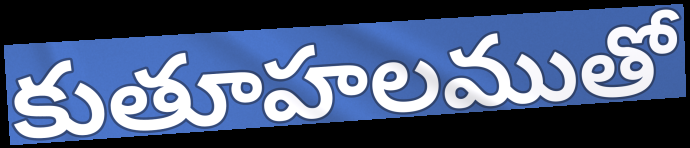
కుతూహలముతో